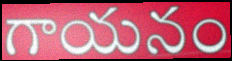
గాయనం